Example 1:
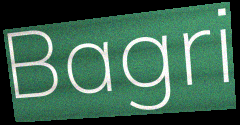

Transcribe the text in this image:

Bagri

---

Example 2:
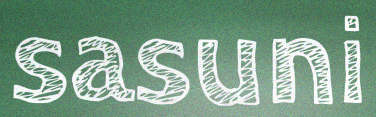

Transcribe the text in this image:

sasuni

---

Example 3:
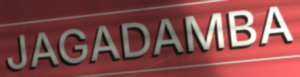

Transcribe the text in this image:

JAGADAMBA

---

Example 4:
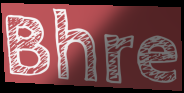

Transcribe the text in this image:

Bhre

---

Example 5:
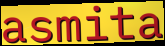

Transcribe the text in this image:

asmita